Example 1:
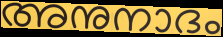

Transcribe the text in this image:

അനുനാദം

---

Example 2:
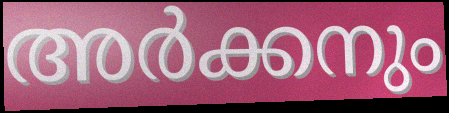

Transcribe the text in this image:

അർക്കനും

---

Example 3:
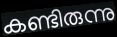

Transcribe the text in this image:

കണ്ടിരുന്നു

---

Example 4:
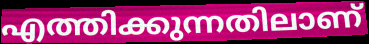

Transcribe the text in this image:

എത്തിക്കുന്നതിലാണ്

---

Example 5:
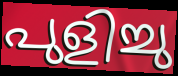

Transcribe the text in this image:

പുളിച്ചു